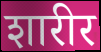
शारीर